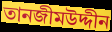
তানজীমউদ্দীন